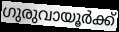
ഗുരുവായൂർക്ക്